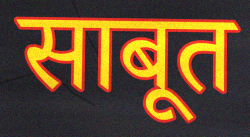
साबूत